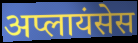
अप्लायंसेस